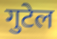
गुटेल